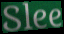
Slee